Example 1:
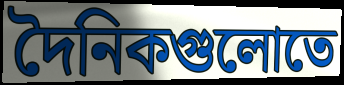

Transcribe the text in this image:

দৈনিকগুলোতে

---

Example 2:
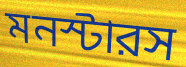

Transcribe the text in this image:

মনস্টারস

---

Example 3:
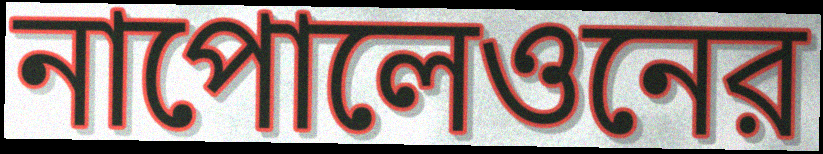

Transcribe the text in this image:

নাপোলেওনের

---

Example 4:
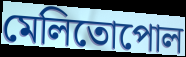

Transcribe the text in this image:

মেলিতোপোল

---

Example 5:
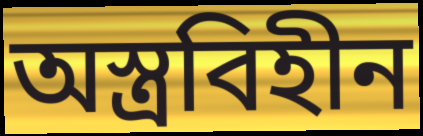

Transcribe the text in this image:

অস্ত্রবিহীন